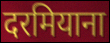
दरमियाना